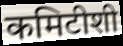
कमिटीशी